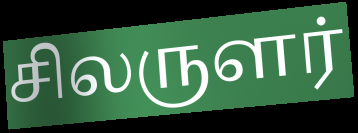
சிலருளர்